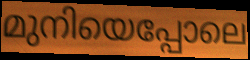
മുനിയെപ്പോലെ